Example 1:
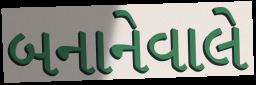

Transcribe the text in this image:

બનાનેવાલે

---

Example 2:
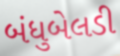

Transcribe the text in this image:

બંધુબેલડી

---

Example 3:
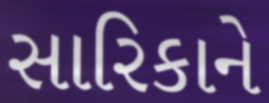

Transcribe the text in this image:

સારિકાને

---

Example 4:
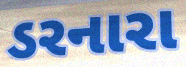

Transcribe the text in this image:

ડરનારા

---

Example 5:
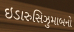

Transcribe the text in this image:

ઇડારુસિઝુમાબનો